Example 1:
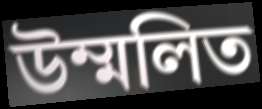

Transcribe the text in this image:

উম্মলিত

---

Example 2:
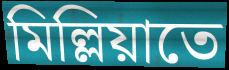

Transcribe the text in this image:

মিল্লিয়াতে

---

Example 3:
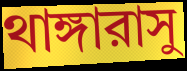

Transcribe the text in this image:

থাঙ্গারাসু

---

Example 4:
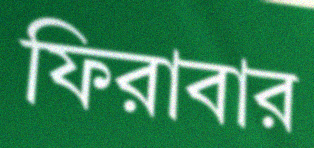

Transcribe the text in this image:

ফিরাবার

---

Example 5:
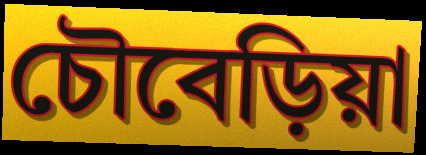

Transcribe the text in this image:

চৌবেড়িয়া